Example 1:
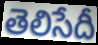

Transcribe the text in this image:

తెలిసేదీ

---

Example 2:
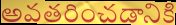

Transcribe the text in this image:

అవతరించడానికి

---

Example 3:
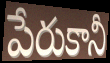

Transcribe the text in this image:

పేరుకానీ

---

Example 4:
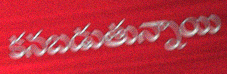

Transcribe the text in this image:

కనబడుతున్నాయి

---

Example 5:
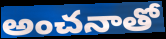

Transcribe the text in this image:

అంచనాతో